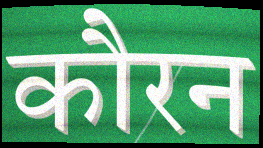
कौरन